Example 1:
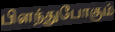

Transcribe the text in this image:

பிளந்துபோகும்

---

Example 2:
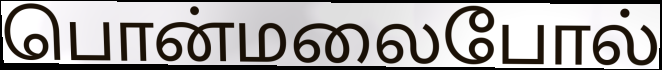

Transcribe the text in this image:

பொன்மலைபோல்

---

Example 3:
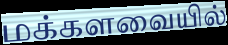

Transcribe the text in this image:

மக்களவையில்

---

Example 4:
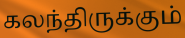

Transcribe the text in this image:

கலந்திருக்கும்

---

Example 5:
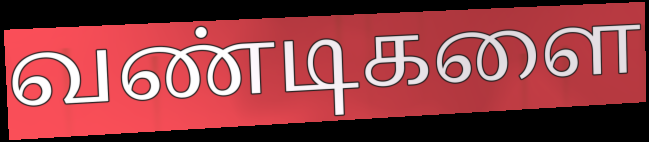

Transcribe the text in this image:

வண்டிகளை